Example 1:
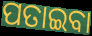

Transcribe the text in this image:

ପତାଇବା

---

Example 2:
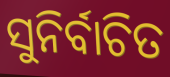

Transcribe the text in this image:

ସୁନିର୍ବାଚିତ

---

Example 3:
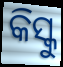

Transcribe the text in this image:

କିସ୍କୁ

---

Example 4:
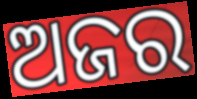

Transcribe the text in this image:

ଅଜର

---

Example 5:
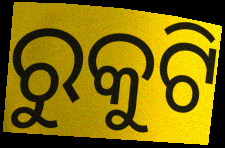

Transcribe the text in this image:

ରୁକୁଟି